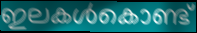
ഇലകൾകൊണ്ട്